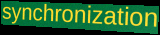
synchronization